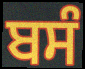
ਬਸੰ